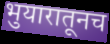
भुयारातूनच